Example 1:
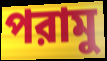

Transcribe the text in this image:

পরামু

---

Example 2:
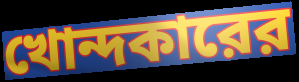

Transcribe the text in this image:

খোন্দকারের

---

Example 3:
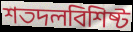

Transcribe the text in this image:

শতদলবিশিষ্ট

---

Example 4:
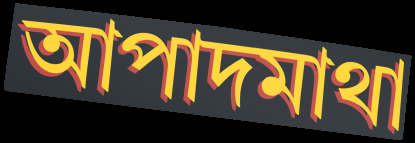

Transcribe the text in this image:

আপাদমাথা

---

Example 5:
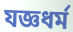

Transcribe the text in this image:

যজ্ঞধর্ম